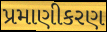
પ્રમાણીકરણ